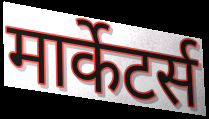
मार्केटर्स